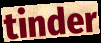
tinder